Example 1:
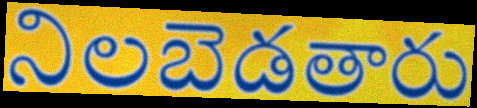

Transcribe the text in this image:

నిలబెడతారు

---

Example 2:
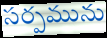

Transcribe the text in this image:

సర్పమును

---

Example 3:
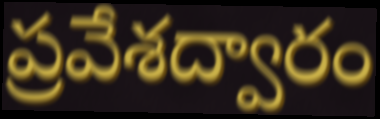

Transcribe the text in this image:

ప్రవేశద్వారం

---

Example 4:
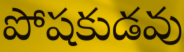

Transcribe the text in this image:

పోషకుడవు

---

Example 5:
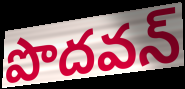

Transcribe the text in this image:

పొదవన్